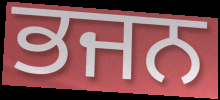
ਭਜਨ